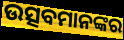
ଉତ୍ସବମାନଙ୍କର